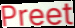
Preet